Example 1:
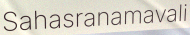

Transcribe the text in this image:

Sahasranamavali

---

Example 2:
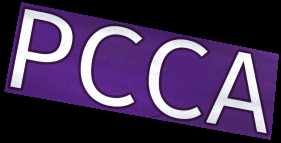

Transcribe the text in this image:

PCCA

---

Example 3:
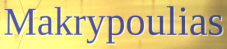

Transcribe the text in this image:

Makrypoulias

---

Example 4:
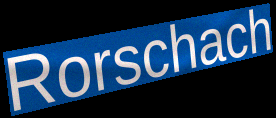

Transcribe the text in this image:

Rorschach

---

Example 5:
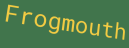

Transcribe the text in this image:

Frogmouth